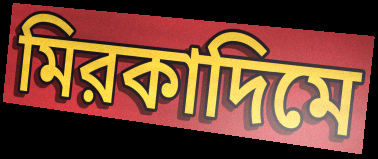
মিরকাদিমে